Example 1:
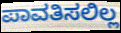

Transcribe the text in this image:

ಪಾವತಿಸಲಿಲ್ಲ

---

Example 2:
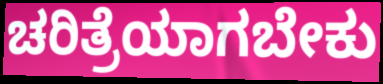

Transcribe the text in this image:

ಚರಿತ್ರೆಯಾಗಬೇಕು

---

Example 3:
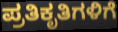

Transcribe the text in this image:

ಪ್ರತಿಕೃತಿಗಳಿಗೆ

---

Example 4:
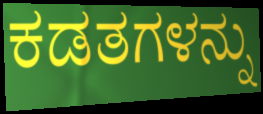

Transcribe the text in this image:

ಕಡತಗಳನ್ನು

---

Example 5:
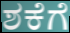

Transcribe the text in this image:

ಶಕೆಗೆ